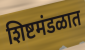
शिष्टमंडळात